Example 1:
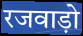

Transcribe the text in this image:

रजवाड़ो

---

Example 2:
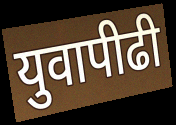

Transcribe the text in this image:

युवापीढी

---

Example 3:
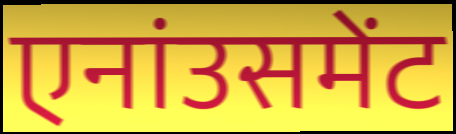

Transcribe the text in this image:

एनांउसमेंट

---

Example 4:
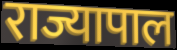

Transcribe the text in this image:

राज्यापाल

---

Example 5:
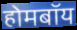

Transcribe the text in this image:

होमबॉय